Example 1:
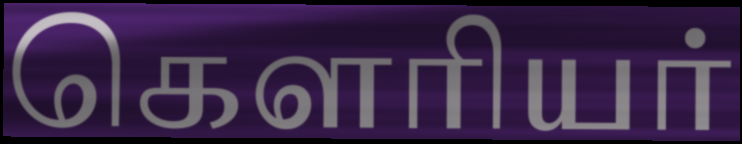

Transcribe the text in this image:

கௌரியர்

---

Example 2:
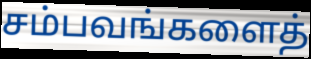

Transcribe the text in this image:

சம்பவங்களைத்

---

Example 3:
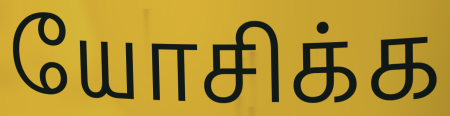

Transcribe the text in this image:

யோசிக்க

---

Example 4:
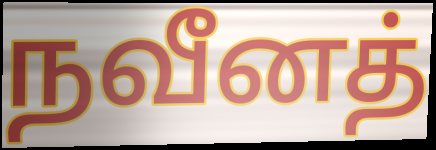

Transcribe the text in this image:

நவீனத்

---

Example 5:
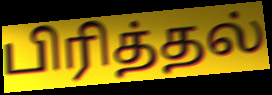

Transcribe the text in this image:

பிரித்தல்